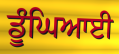
ਡੂੰਘਿਆਈ